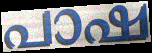
പാഷ